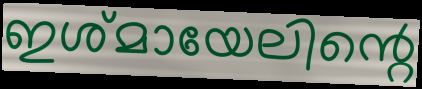
ഇശ്മായേലിന്റെ